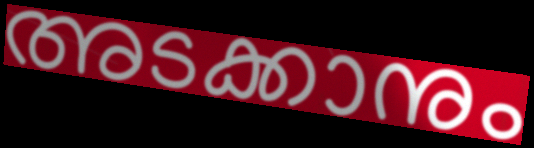
അടക്കാനും